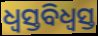
ଧ୍ୱସ୍ତବିଧ୍ୱସ୍ତ